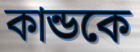
কান্ডকে